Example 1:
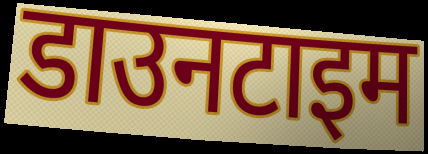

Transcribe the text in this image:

डाउनटाइम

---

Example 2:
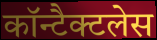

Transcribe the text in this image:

कॉन्टैक्टलेस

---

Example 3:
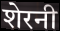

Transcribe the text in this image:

शेरनी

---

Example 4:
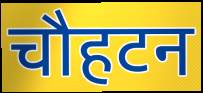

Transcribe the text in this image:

चौहटन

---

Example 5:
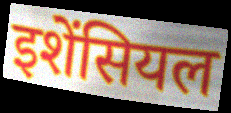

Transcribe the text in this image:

इशेंसियल